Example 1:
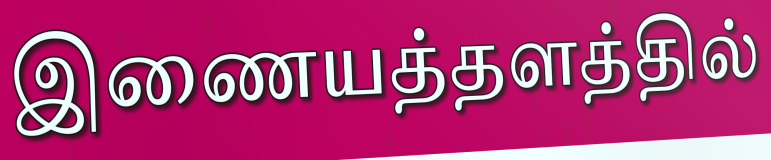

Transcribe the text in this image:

இணையத்தளத்தில்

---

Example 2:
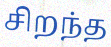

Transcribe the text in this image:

சிறந்த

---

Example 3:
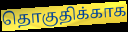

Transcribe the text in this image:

தொகுதிக்காக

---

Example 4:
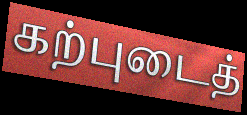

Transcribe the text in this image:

கற்புடைத்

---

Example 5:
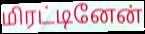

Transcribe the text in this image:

மிரட்டினேன்